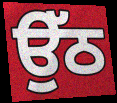
ਉੱਠ